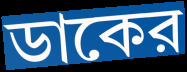
ডাকের